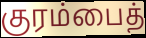
குரம்பைத்